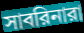
সাবরিনারা